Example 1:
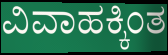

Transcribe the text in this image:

ವಿವಾಹಕ್ಕಿಂತ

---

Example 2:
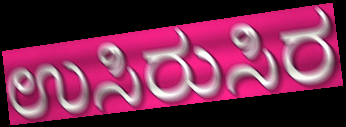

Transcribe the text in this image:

ಉಸಿರುಸಿರ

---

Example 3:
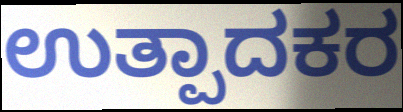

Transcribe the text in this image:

ಉತ್ಪಾದಕರ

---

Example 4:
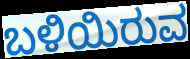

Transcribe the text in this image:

ಬಳಿಯಿರುವ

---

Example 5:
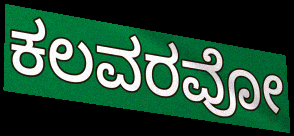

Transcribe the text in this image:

ಕಲವರವೋ